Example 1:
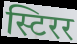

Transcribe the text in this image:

स्टिरर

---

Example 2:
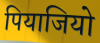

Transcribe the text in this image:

पियाजियो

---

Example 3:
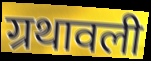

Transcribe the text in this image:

ग्रथावली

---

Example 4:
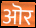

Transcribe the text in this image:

ऒर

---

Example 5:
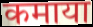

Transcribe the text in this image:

कमाया